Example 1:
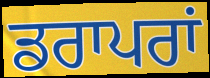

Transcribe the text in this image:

ਡਰਾਪਰਾਂ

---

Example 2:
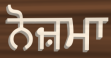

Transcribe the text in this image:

ਨੋਜ਼ਮਾ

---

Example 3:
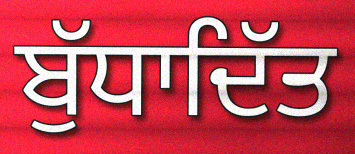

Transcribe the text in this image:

ਬੁੱਧਾਦਿੱਤ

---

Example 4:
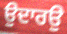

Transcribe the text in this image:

ਉਦਾਰਉ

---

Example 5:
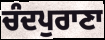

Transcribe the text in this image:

ਚੰਦਪੁਰਾਣਾ